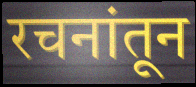
रचनांतून